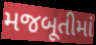
મજબૂતીમાં